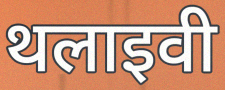
थलाइवी